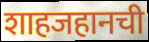
शाहजहानची